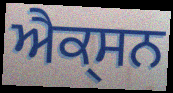
ਐਕ੍ਸਨ